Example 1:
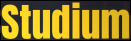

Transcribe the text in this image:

Studium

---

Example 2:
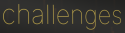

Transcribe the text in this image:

challenges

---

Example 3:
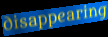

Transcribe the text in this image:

disappearing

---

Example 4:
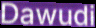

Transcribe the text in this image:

Dawudi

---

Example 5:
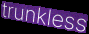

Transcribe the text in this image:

trunkless